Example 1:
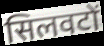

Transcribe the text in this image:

सिलवटों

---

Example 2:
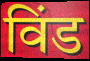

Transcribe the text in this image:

विंड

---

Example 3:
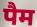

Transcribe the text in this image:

पैम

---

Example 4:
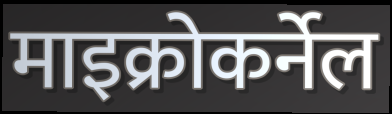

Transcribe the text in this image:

माइक्रोकर्नेल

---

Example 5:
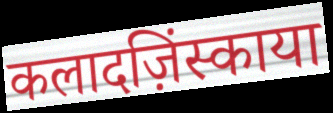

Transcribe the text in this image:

कलादज़िंस्काया